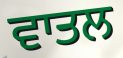
ਵਾਤਲ